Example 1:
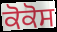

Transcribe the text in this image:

ਕੋਕੋਸ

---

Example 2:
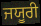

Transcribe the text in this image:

ਜਯੂਰੀ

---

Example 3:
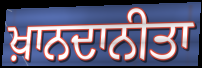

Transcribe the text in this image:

ਖ਼ਾਨਦਾਨੀਤਾ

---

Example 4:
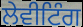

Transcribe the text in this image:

ਲੇਵੀਟਿੰਗ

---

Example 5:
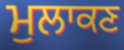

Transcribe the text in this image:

ਮੁਲਾਕਣ